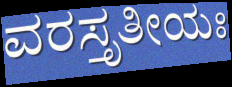
ವರಸ್ತೃತೀಯಃ